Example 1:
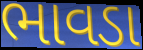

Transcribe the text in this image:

ભાવડા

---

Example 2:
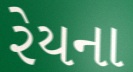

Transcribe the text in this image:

રેયના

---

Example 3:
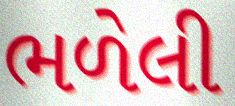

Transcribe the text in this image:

ભળેલી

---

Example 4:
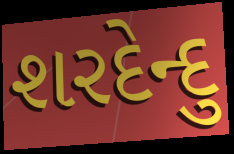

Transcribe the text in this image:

શરદેન્દુ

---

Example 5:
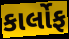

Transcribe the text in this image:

કાર્લોફ